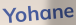
Yohane